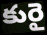
కురై